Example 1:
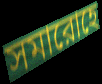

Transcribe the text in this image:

সমারোহে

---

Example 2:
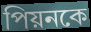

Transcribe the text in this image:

পিয়নকে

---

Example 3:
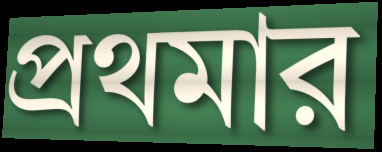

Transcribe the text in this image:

প্রথমার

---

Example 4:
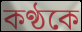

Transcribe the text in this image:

কণ্ঠকে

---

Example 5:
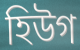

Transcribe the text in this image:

হিউগ